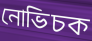
নোভিচক